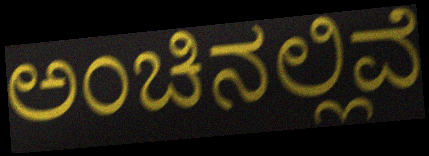
ಅಂಚಿನಲ್ಲಿವೆ